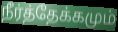
நீர்த்தேக்கமும்